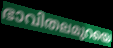
ഭാവിതലമുറയെ